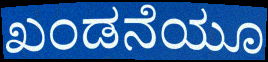
ಖಂಡನೆಯೂ